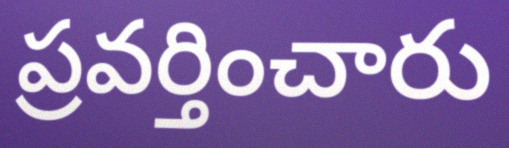
ప్రవర్తించారు